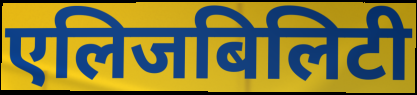
एलिजबिलिटी